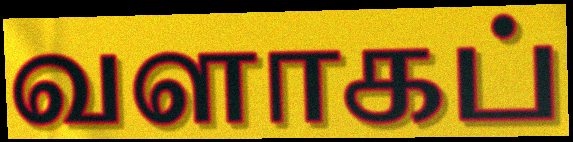
வளாகப்